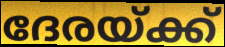
ദേരയ്ക്ക്